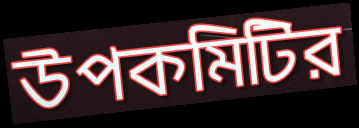
উপকমিটির